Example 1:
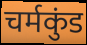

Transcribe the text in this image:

चर्मकुंड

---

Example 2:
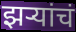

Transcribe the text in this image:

झर्‍यांचं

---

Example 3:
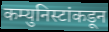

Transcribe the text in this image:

कम्युनिस्टांकडून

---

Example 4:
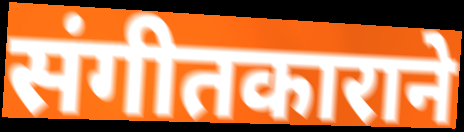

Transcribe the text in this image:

संगीतकाराने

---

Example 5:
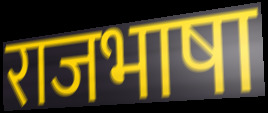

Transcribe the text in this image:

राजभाषा